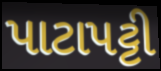
પાટાપટ્ટી